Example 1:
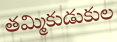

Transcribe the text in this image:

తమ్మికుడుకుల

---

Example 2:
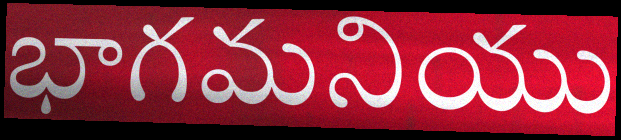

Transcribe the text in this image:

భాగమనియు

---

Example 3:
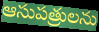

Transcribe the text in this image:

ఆసుపత్రులను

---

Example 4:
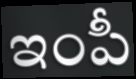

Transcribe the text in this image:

ఇంపీ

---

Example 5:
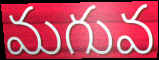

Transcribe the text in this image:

మగువ